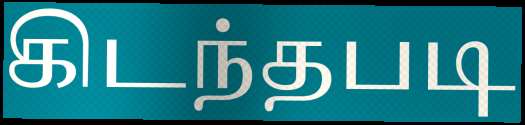
கிடந்தபடி